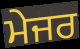
ਮੇਜਰ